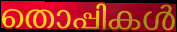
തൊപ്പികൾ